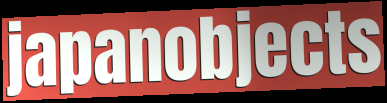
japanobjects